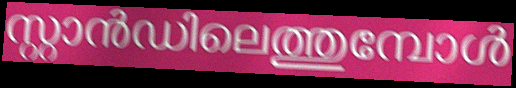
സ്റ്റാൻഡിലെത്തുമ്പോൾ